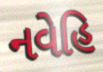
નવેહિ